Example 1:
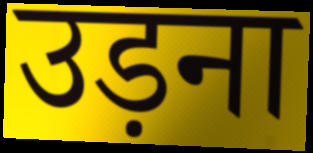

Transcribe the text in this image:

उड़ना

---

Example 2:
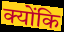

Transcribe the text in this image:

क्योंकि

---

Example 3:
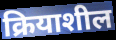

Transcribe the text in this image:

क्रियाशील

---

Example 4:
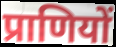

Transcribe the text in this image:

प्राणियों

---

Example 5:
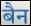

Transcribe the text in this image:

बैन